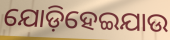
ଯୋଡ଼ିହେଇଯାଉ